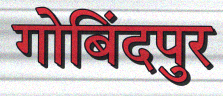
गोबिंदपुर